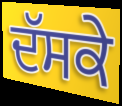
ਦੱਸਕੇ